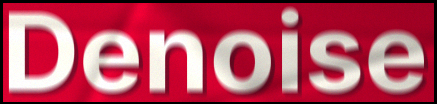
Denoise